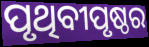
ପୃଥିବୀପୃଷ୍ଠର